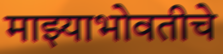
माझ्याभोवतीचे